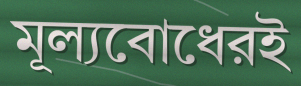
মূল্যবোধেরই